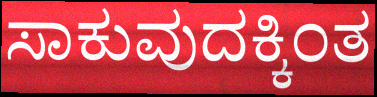
ಸಾಕುವುದಕ್ಕಿಂತ